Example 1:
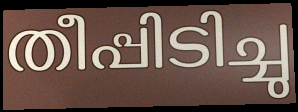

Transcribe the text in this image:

തീപ്പിടിച്ചു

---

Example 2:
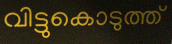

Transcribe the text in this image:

വിട്ടുകൊടുത്ത്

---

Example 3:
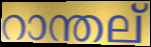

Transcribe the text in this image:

റാന്തല്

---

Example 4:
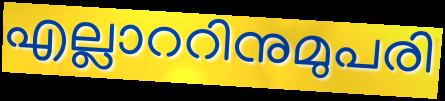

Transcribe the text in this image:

എല്ലാററിനുമുപരി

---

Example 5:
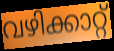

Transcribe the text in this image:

വഴിക്കാറ്റ്